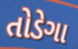
તોડેગા